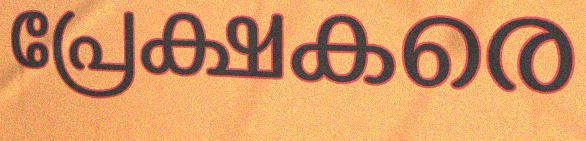
പ്രേക്ഷകരെ